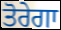
ਤੋਰੇਗਾ